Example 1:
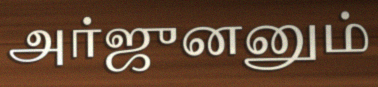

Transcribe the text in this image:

அர்ஜுனனும்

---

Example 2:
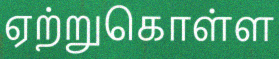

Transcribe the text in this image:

ஏற்றுகொள்ள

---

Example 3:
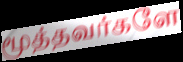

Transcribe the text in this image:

மூத்தவர்களே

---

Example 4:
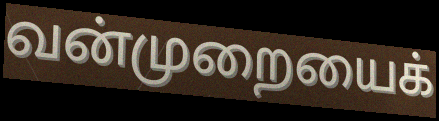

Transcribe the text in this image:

வன்முறையைக்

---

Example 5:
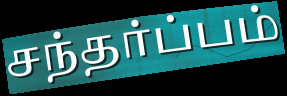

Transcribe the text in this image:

சந்தர்ப்பம்